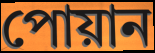
পোয়ান